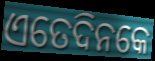
ଏତେଦିନକେ